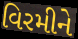
વિરમીને